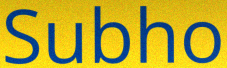
Subho